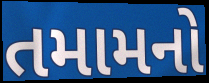
તમામનો